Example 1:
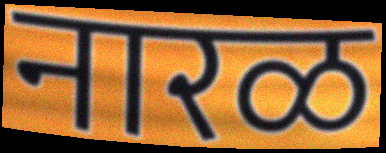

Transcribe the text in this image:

नारळ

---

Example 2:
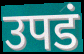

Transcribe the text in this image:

उपडं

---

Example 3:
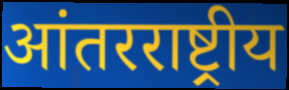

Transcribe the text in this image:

आंतरराष्ट्रीय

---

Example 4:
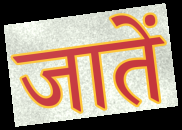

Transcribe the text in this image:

जातें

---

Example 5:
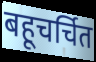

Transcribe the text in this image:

बहूचर्चित